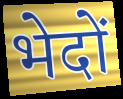
भेदों